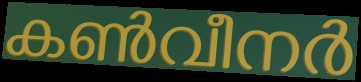
കൺവീനർ